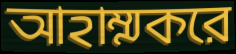
আহাম্মকরে